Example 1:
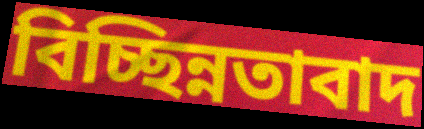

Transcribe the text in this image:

বিচ্ছিন্নতাবাদ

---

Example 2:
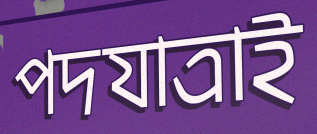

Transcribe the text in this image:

পদযাত্রাই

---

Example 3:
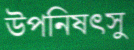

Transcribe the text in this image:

উপনিষৎসু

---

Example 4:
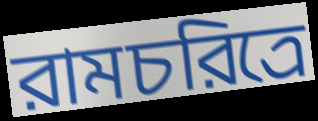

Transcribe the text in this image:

রামচরিত্রে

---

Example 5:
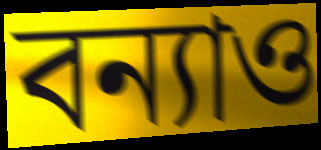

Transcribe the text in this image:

বন্যাও